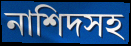
নাশিদসহ